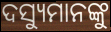
ଦସ୍ୟୁମାନଙ୍କୁ